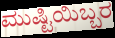
ಮುಷ್ಟಿಯಿಬ್ಬರ